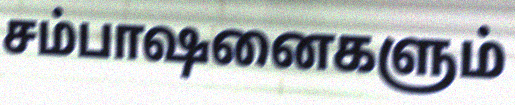
சம்பாஷனைகளும்